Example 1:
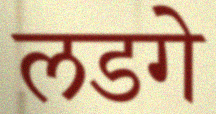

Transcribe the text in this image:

लडगे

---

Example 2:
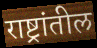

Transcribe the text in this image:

राष्ट्रांतील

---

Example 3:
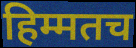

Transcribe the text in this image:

हिम्मतच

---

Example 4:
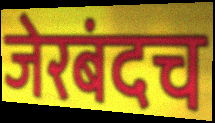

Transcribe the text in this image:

जेरबंदच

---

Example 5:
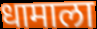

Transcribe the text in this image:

धामाला